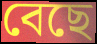
বেছে